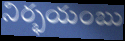
నిర్భయంబు